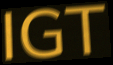
IGT